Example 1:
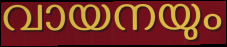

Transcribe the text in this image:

വായനയും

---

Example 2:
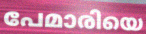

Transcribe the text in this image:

പേമാരിയെ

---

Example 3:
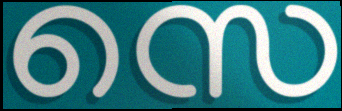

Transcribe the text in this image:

സെ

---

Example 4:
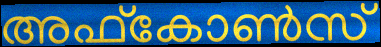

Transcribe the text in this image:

അഫ്കോൺസ്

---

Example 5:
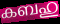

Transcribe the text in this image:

കബഹു